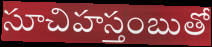
సూచిహస్తంబుతో